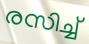
രസിച്ച്